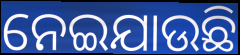
ନେଇଯାଉଛି